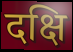
दक्षि